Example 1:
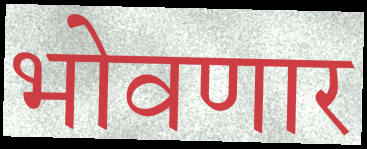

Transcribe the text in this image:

भोवणार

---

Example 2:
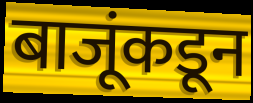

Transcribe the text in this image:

बाजूंकडून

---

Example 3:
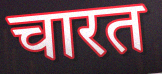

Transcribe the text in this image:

चारत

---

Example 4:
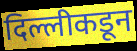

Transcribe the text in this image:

दिल्लीकडून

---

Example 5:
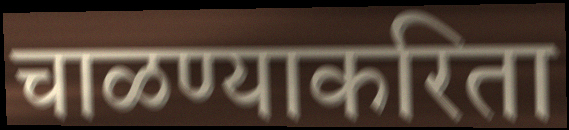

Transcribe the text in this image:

चाळण्याकरिता